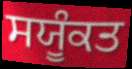
ਸਯੂੰਕਤ